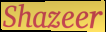
Shazeer